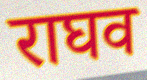
राघव